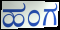
ಹಂಗ